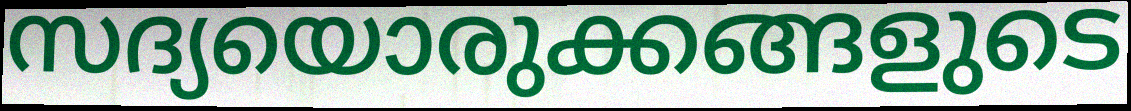
സദ്യയൊരുക്കങ്ങളുടെ